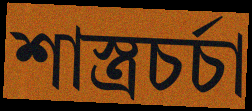
শাস্ত্রচর্চা